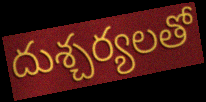
దుశ్చర్యలతో